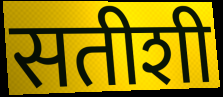
सतीशी